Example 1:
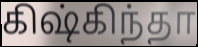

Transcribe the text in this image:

கிஷ்கிந்தா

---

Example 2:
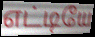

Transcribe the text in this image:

எட்டியே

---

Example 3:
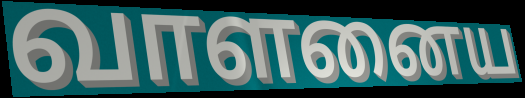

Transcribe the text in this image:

வாளனைய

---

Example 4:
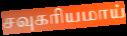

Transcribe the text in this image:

சவுகரியமாய்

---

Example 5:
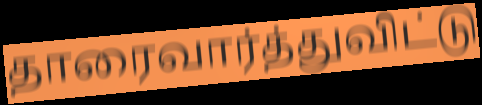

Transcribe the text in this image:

தாரைவார்த்துவிட்டு